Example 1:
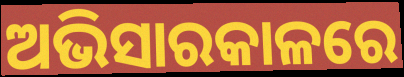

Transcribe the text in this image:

ଅଭିସାରକାଳରେ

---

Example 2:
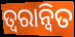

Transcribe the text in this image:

ତ୍ୱରାନ୍ଵିତ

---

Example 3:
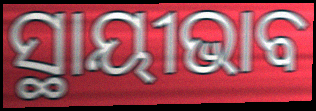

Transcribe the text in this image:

ସ୍ଥାୟୀଭାବ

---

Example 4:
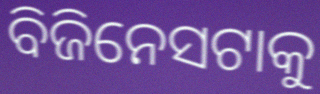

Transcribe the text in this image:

ବିଜିନେସଟାକୁ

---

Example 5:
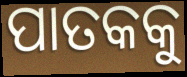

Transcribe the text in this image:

ପାତକକୁ